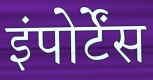
इंपोर्टेंस